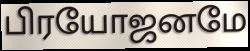
பிரயோஜனமே